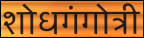
शोधगंगोत्री